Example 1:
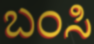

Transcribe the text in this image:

ಬಂಸಿ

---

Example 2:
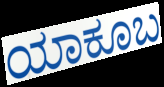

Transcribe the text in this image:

ಯಾಕೂಬ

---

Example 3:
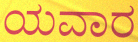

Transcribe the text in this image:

ಯವಾರ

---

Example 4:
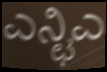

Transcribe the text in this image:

ಎನ್ಟಿಎ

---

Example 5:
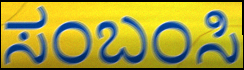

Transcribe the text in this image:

ಸಂಬಂಸಿ